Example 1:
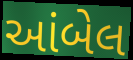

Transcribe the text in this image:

આંબેલ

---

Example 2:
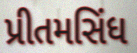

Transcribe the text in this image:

પ્રીતમસિંધ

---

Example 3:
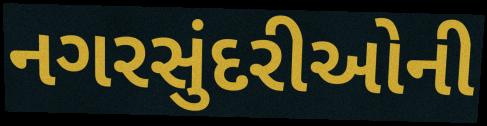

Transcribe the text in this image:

નગરસુંદરીઓની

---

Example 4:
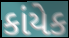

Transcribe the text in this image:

કાંયેક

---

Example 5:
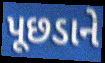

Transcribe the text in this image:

પૂછડાને